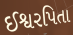
ઈશ્વરપિતા